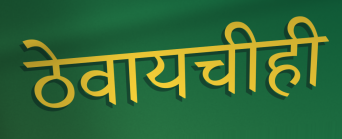
ठेवायचीही